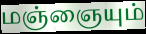
மஞ்ஞையும்